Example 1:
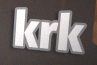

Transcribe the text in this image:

krk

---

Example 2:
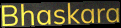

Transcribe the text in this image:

Bhaskara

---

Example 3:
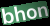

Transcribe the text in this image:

bhon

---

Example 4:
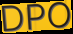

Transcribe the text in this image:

DPO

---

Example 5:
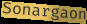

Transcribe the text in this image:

Sonargaon